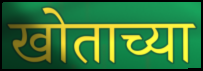
खोताच्या